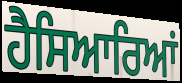
ਹੈਸਿਆਰਿਆਂ